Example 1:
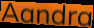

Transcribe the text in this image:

Aandra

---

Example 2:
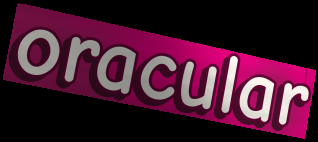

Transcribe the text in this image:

oracular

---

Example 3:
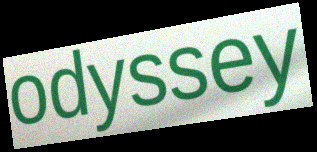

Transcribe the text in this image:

odyssey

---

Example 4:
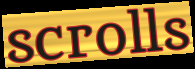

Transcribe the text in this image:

scrolls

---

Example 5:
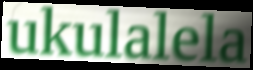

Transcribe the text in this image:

ukulalela